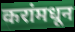
करांमधून